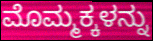
ಮೊಮ್ಮಕ್ಕಳನ್ನು